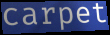
carpet